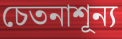
চেতনাশূন্য